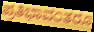
ಪ್ರತಿಭಾವಂತರೂ